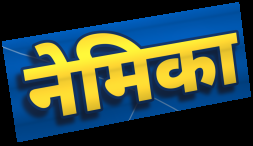
नेमिका